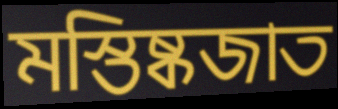
মস্তিষ্কজাত